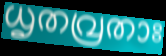
ധൃതവ്രതാഃ